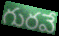
గురవే